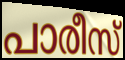
പാരീസ്